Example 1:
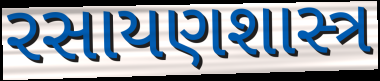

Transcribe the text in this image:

રસાયણશાસ્ત્ર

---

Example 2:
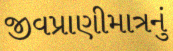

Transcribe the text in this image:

જીવપ્રાણીમાત્રનું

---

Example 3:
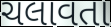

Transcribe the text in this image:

ચલાવતા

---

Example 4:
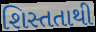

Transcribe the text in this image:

શિસ્તતાથી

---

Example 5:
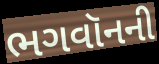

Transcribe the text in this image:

ભગવૉનની